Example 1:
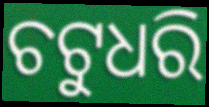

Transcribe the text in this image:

ଚଟୁଧରି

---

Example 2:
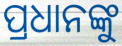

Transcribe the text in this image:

ପ୍ରଧାନଙ୍କୁ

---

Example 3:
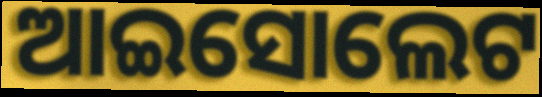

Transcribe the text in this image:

ଆଇସୋଲେଟ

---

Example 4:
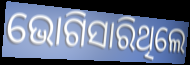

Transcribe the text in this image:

ଭୋଗିସାରିଥିଲେ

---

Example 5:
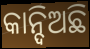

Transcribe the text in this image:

କାନ୍ଦିଅଛି